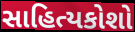
સાહિત્યકોશો